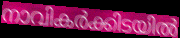
നാവികർക്കിടയിൽ